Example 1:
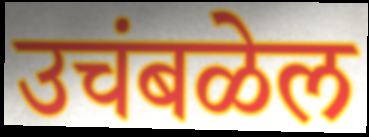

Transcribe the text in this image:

उचंबळेल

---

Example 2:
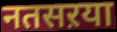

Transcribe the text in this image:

नतसऱया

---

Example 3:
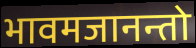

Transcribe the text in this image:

भावमजानन्तो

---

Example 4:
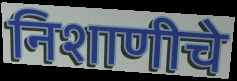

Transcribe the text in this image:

निशाणीचे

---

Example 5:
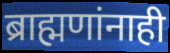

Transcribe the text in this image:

ब्राह्मणांनाही